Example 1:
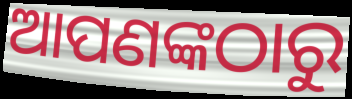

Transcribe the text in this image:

ଆପଣଙ୍କଠାରୁ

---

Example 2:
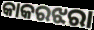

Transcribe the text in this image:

କାକରଝରା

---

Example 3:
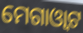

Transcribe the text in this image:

ମେଗାଓ୍ୱାଟ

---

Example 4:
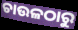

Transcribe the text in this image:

ଚାଉଳଠାରୁ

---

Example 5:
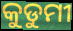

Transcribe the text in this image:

କୁଡୁମୀ